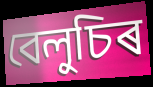
বেলুচিৰ